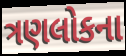
ત્રણલોકના